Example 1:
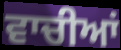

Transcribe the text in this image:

ਵਾਚੀਆਂ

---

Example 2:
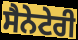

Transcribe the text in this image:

ਸੈਨੇਟੇਰੀ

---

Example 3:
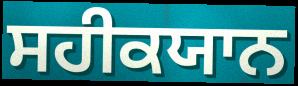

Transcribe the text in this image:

ਸਹੀਕਯਾਨ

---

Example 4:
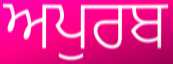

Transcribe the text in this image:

ਅਪੁਰਬ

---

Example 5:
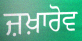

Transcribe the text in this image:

ਜ਼ਖ਼ਾਰੋਵ